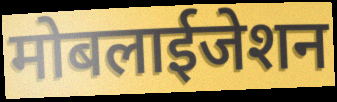
मोबलाईजेशन